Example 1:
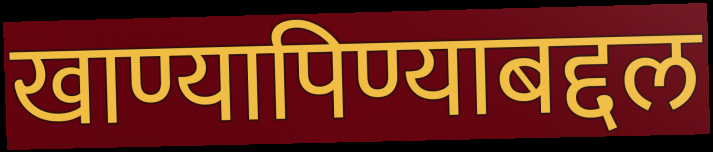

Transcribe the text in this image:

खाण्यापिण्याबद्दल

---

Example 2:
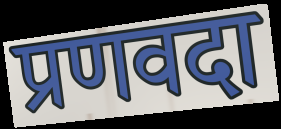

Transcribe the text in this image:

प्रणवदा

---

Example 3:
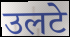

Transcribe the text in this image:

उलटे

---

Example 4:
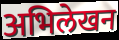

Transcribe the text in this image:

अभिलेखन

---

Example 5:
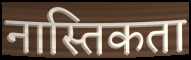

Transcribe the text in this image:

नास्तिकता